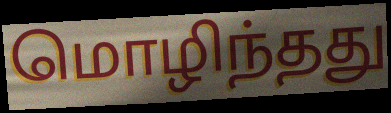
மொழிந்தது